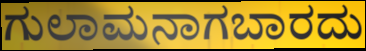
ಗುಲಾಮನಾಗಬಾರದು